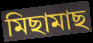
মিছামাছ